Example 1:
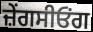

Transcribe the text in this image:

ਜ਼ੇਂਗਸੀਓਂਗ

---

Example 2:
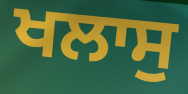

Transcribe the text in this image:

ਖਲਾਸੁ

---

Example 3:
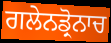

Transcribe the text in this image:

ਗਲੇਨਡ੍ਰੋਨਾਚ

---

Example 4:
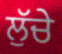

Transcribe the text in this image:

ਲੁੱਚੇ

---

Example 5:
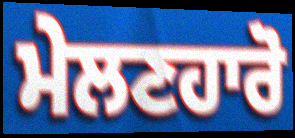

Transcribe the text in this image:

ਮੇਲਣਹਾਰੋ